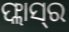
ଫ୍ଲାସ୍‌ର